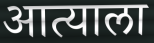
आत्याला